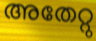
അതേറ്റു